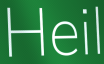
Heil